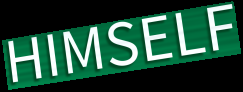
HIMSELF